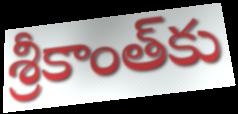
శ్రీకాంత్‌కు